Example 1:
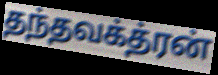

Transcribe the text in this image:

தந்தவக்த்ரன்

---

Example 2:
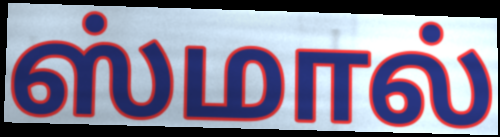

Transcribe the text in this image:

ஸ்மால்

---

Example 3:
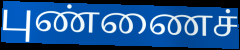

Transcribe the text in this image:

புண்ணைச்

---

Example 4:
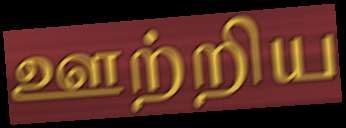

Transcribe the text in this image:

ஊற்றிய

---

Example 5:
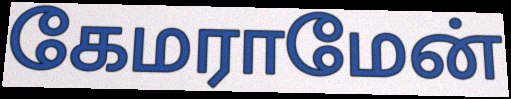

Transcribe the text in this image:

கேமராமேன்